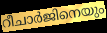
റീചാർജിനെയും